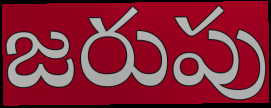
జరుపు